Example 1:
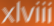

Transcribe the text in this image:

xlviii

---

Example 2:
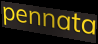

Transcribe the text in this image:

pennata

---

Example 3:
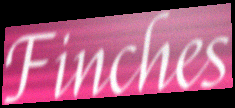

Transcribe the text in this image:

Finches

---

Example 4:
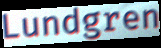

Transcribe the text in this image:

Lundgren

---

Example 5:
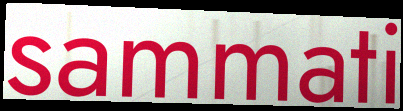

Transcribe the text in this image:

sammati